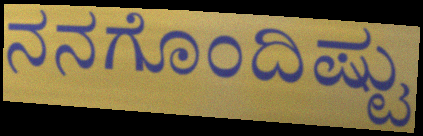
ನನಗೊಂದಿಷ್ಟು